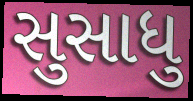
સુસાધુ